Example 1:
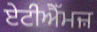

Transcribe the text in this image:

ਏਟੀਐੱਮਜ਼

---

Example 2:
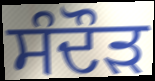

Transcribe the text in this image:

ਸੰਦੌੜ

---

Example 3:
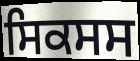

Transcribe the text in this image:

ਸਿਕਸਸ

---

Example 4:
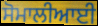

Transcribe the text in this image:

ਸੋਮਾਲੀਆਈ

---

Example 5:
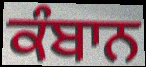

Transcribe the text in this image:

ਕੰਬਾਨ